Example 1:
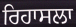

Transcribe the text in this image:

ਰਿਹਾਸਲਾ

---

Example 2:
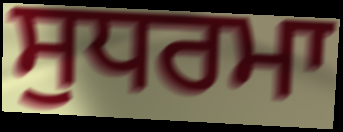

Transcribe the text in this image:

ਸੁਧਰਮਾ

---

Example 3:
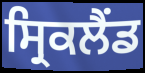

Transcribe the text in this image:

ਸ੍ਰਿਕਲੈਂਡ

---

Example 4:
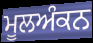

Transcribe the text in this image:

ਮੂਲਅੰਕਨ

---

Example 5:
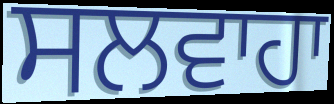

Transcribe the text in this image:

ਸਲਵਾਹਾ